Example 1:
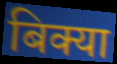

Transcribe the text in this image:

बिक्या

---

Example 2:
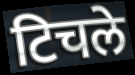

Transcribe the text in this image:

टिचले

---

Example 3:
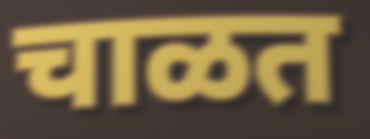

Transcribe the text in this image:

चाळत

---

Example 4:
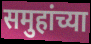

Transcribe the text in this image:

समुहांच्या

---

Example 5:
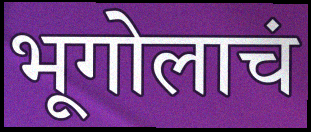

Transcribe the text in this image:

भूगोलाचं